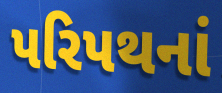
પરિપથનાં